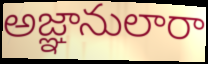
అజ్ఞానులారా